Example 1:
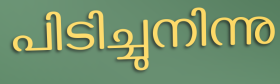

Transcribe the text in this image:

പിടിച്ചുനിന്നു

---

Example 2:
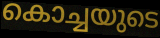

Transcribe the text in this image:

കൊച്ചയുടെ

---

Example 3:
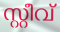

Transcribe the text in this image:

സ്റ്റീവ്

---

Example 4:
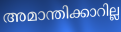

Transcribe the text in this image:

അമാന്തിക്കാറില്ല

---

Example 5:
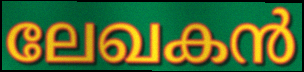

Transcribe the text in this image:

ലേഖകൻ